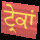
ਟ੍ਰੇਕਾਂ